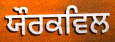
ਯੌਰਕਵਿਲ